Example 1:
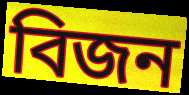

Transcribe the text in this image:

বিজন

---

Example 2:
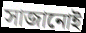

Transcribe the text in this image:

সাজানোই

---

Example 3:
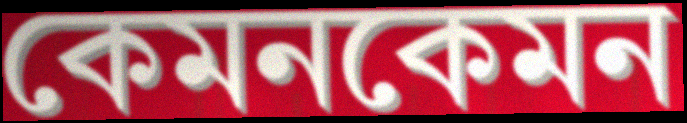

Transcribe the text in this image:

কেমনকেমন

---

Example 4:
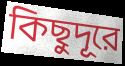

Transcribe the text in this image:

কিছুদূরে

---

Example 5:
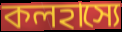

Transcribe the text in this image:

কলহাস্যে